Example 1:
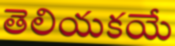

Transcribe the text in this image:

తెలియకయే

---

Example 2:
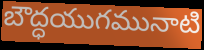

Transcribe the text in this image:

బౌద్ధయుగమునాటి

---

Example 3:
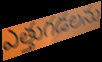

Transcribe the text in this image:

ఎత్తుగడలను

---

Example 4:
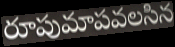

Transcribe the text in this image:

రూపుమాపవలసిన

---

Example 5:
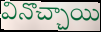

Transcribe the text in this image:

వినొచ్చాయి